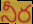
నీర